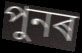
পুনৰ